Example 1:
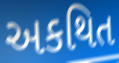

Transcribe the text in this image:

અકથિત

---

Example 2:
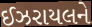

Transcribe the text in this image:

ઈઝરાયલને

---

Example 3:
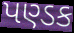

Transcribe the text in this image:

પણ્ડક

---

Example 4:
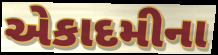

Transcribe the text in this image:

એકાદમીના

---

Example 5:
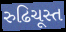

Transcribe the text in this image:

રુઢિચૂસ્ત